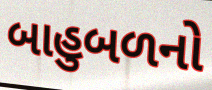
બાહુબળનો